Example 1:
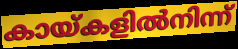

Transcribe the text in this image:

കായ്കളിൽനിന്ന്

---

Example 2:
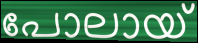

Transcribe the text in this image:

പോലായ്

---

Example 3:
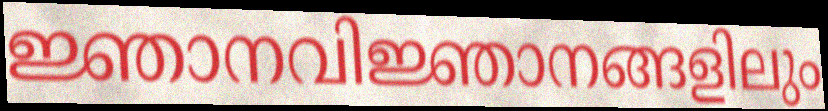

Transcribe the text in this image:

ജ്ഞാനവിജ്ഞാനങ്ങളിലും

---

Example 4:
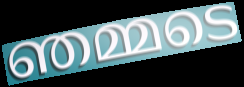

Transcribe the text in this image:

ഞമ്മടെ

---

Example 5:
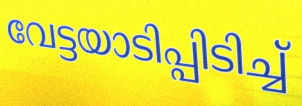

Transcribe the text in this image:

വേട്ടയാടിപ്പിടിച്ച്